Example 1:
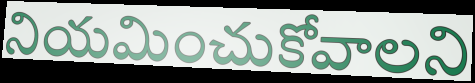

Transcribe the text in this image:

నియమించుకోవాలని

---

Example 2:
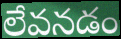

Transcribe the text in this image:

లేవనడం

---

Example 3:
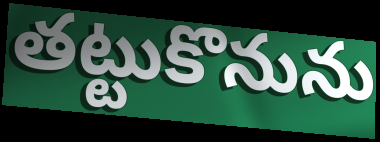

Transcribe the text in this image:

తట్టుకొనును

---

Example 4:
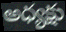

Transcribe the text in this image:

అధ్యక్షు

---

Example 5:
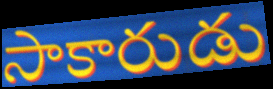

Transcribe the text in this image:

సాకారుడు